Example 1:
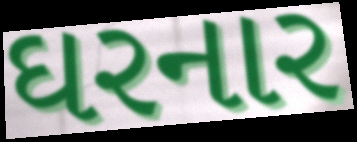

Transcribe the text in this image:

ઘરનાર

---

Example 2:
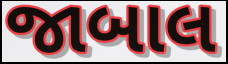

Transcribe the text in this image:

જાબાલ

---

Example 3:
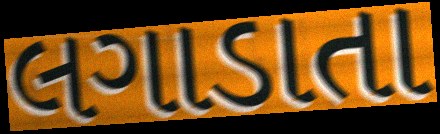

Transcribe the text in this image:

લગાડાતા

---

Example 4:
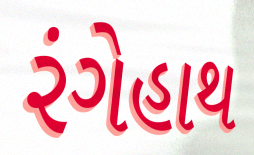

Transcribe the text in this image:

રંગેહાથ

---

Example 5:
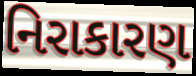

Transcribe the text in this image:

નિરાકારણ